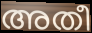
അതീ